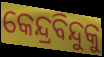
କେନ୍ଦ୍ରବିନ୍ଦୁକୁ